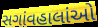
સગાંવહાલાંઓ